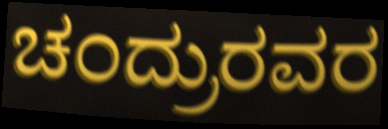
ಚಂದ್ರುರವರ